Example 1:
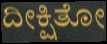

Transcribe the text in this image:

ದೀಕ್ಷಿತೋ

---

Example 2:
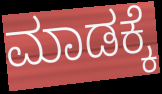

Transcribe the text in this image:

ಮಾಡಕ್ಕೆ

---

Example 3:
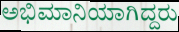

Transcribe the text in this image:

ಅಭಿಮಾನಿಯಾಗಿದ್ದರು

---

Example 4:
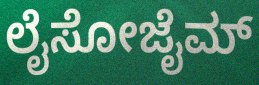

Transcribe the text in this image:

ಲೈಸೋಜೈಮ್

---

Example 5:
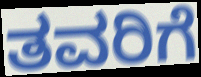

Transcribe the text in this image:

ತವರಿಗೆ